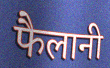
फैलानी